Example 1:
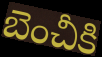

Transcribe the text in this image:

బెంచీకి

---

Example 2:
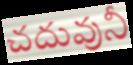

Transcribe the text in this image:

చదువునీ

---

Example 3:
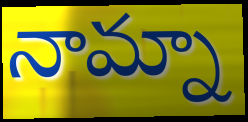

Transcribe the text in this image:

నామ్నా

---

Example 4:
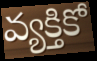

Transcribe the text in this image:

వ్యక్తికో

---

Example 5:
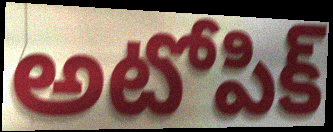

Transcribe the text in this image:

అటోపిక్